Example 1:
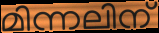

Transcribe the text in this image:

മിന്നലിന്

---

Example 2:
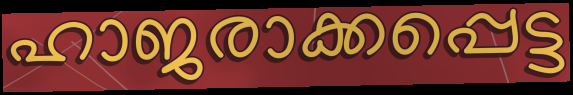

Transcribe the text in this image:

ഹാജരാക്കപ്പെട്ട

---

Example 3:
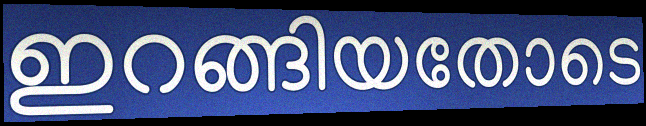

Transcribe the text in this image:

ഇറങ്ങിയതോടെ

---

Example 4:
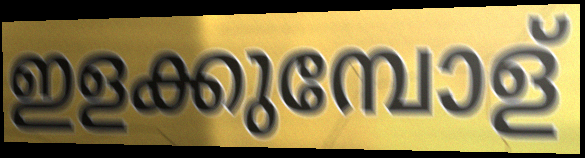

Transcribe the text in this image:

ഇളക്കുമ്പോള്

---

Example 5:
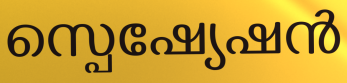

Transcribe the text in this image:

സ്പെഷ്യേഷൻ